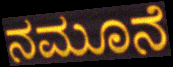
ನಮೂನೆ